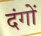
दंगों